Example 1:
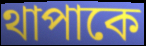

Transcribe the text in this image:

থাপাকে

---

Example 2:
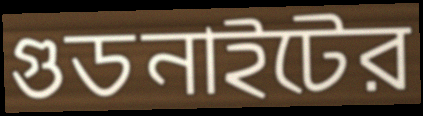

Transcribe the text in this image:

গুডনাইটের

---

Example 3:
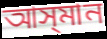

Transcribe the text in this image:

আস্‌মান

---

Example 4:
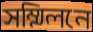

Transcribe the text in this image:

সম্মিলনে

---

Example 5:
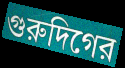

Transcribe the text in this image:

গুরুদিগের